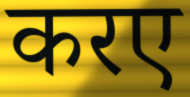
करए